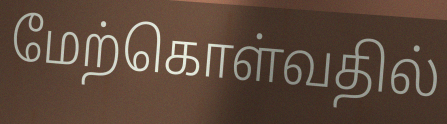
மேற்கொள்வதில்